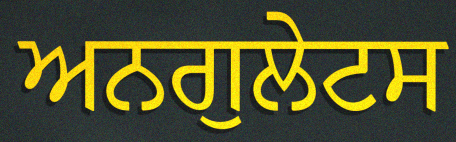
ਅਨਗੁਲੇਟਸ